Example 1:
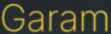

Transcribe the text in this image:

Garam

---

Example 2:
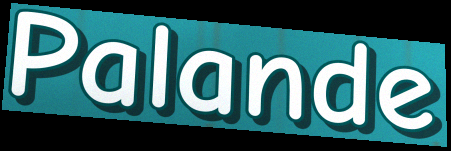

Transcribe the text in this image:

Palande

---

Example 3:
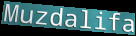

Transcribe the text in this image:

Muzdalifa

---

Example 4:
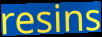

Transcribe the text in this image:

resins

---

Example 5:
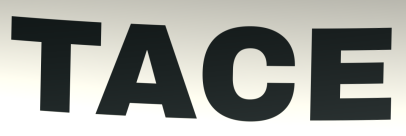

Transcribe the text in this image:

TACE